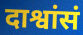
दाश्वांसं